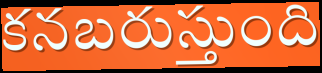
కనబరుస్తుంది